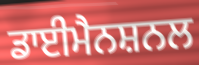
ਡਾਈਮੈਨਸ਼ਨਲ